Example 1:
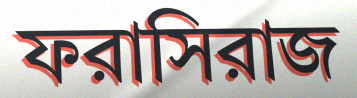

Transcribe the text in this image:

ফরাসিরাজ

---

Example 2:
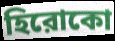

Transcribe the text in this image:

হিরোকো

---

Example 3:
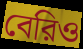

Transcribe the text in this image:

বেরিও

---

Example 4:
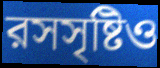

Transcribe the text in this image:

রসসৃষ্টিও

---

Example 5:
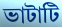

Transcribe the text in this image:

ভাটাটি